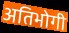
अतिभोगी